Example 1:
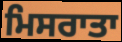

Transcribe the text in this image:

ਮਿਸਰਾਤਾ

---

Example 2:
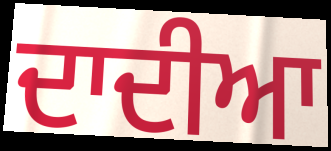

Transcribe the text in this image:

ਦਾਦੀਆ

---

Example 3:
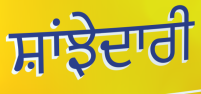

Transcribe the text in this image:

ਸ਼ਾਂਝੇਦਾਰੀ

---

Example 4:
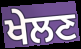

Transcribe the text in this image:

ਖੇਲਣ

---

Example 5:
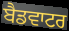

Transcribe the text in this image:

ਬੈਡਵਾਟਰ